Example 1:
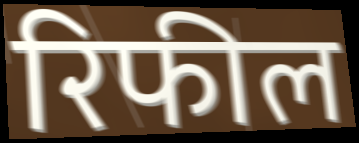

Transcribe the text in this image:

रिफील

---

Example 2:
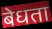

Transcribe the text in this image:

बेधता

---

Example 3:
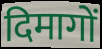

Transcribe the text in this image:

दिमागों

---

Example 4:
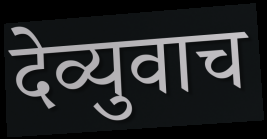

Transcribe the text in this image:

देव्युवाच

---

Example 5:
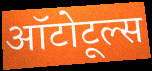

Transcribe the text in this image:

ऑटोटूल्स